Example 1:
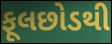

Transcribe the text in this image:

ફૂલછોડથી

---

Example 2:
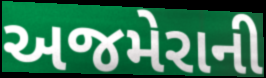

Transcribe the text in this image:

અજમેરાની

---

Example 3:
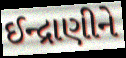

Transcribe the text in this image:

ઈન્દ્રાણીને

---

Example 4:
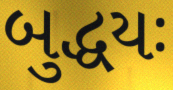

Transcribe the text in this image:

બુદ્ધયઃ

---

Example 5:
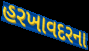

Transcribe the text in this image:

હરખાવદરના